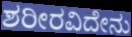
ಶರೀರವಿದೇನು